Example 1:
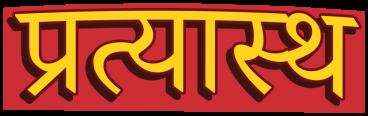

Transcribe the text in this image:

प्रत्यास्थ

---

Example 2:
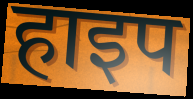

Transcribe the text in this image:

हाइप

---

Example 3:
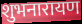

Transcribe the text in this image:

शुभनारायण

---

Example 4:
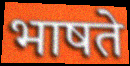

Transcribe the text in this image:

भाषते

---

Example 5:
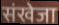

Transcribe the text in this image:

संखेजा